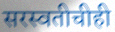
सरस्वतीचीही